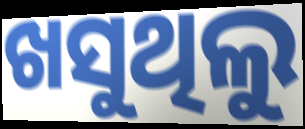
ଖସୁଥିଲୁ